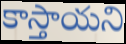
కాస్తాయని